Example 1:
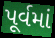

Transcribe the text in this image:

પૂર્વમાં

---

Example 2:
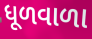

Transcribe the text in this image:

ધૂળવાળા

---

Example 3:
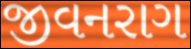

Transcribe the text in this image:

જીવનરાગ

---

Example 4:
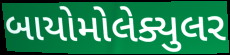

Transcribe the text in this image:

બાયોમોલેક્યુલર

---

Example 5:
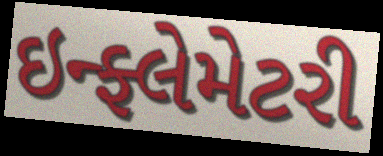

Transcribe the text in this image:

ઇન્ફ્લેમેટરી